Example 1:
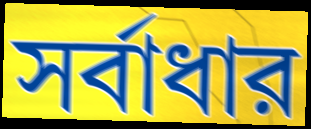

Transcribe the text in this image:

সর্বাধার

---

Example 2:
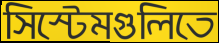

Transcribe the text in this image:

সিস্টেমগুলিতে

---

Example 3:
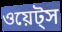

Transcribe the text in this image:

ওয়েট্স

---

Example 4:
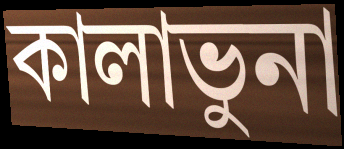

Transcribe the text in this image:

কালাভুনা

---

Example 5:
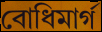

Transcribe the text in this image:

বোধিমার্গ